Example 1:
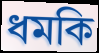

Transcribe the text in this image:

ধমকি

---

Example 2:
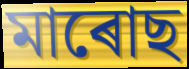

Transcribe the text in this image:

মাৰোছ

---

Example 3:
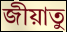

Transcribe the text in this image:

জীয়াতু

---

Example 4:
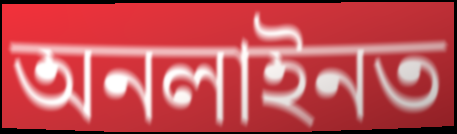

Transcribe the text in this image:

অনলাইনত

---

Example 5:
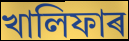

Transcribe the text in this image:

খালিফাৰ